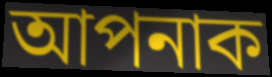
আপনাক